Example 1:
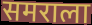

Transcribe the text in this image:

समराला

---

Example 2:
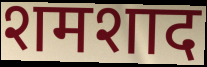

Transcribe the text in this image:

शमशाद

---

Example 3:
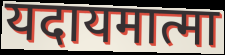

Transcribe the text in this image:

यदायमात्मा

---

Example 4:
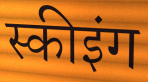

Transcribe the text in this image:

स्कीइंग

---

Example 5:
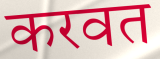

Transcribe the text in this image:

करवत